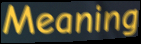
Meaning